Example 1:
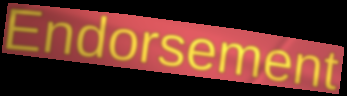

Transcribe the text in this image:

Endorsement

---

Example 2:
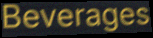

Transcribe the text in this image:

Beverages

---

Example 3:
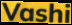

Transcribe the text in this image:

Vashi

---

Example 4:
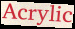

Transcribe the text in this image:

Acrylic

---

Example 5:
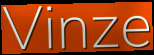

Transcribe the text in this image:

Vinze